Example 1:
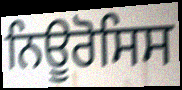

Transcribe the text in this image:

ਨਿਊਰੋਸਿਸ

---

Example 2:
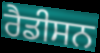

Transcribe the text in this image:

ਰੈਡੀਸਨ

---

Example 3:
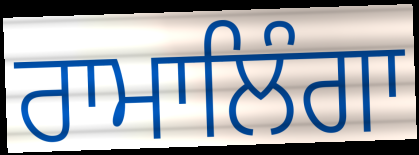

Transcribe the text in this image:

ਰਾਮਾਲਿੰਗਾ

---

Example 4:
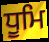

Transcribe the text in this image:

ਧੂਮਿ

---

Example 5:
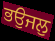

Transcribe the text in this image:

ਭਉਜਲੁ